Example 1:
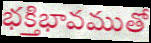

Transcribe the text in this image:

భక్తిభావముతో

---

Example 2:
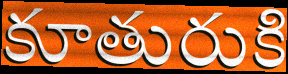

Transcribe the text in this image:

కూతురుకి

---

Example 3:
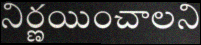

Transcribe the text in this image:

నిర్ణయించాలని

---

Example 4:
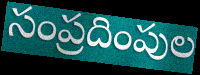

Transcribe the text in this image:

సంప్రదింపుల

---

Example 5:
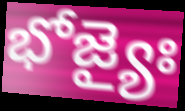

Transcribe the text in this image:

భోజ్యైః